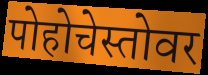
पोहोचेस्तोवर